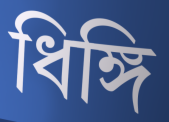
ধিঙ্গি